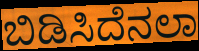
ಬಿಡಿಸಿದೆನಲಾ